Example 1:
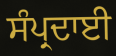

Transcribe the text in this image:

ਸੰਪ੍ਰਦਾਈ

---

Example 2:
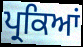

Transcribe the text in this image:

ਪ੍ਰਕਿਆਂ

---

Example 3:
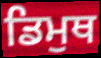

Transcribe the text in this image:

ਡਿਮੁਥ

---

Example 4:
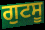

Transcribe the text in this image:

ਗੁਟਸੂ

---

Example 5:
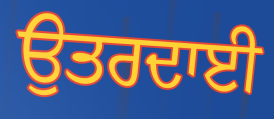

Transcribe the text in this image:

ਉਤਰਦਾਈ